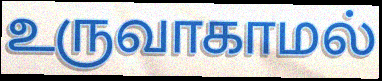
உருவாகாமல்